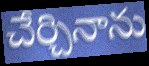
చేర్చినాను